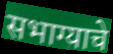
सभाग्याचे